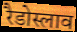
रैडोस्लाव